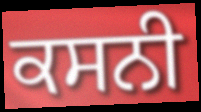
ਕਸਨੀ